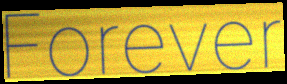
Forever